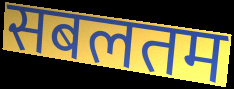
सबलतम